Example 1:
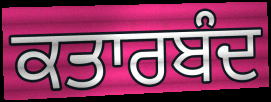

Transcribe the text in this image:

ਕਤਾਰਬੰਦ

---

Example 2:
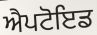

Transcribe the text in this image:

ਐਪਟੋਇਡ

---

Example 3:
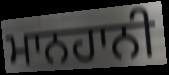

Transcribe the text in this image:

ਮਾਨਹਾਨੀ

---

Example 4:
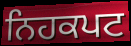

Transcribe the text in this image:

ਨਿਹਕਪਟ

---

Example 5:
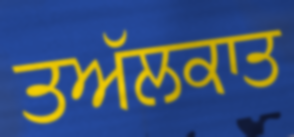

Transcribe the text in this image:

ਤਅੱਲਕਾਤ